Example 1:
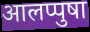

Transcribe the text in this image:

आलप्पुषा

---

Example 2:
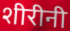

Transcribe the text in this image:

शीरीनी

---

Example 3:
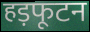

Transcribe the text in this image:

हड़फूटन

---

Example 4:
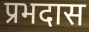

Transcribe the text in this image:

प्रभदास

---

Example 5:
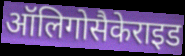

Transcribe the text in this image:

ऑलिगोसैकेराइड